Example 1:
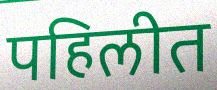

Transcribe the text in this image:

पहिलीत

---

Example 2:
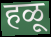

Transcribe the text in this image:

हळू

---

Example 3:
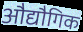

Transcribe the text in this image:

औद्यौगिक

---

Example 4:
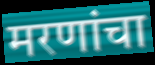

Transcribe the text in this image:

मरणांचा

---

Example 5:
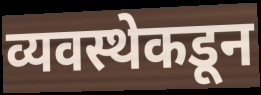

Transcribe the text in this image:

व्यवस्थेकडून